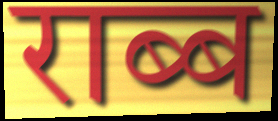
राब्ब